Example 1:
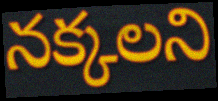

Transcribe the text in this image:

నక్కలని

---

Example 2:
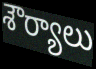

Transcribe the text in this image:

శౌర్యాలు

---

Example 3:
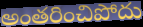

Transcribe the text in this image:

అంతరించిపోదు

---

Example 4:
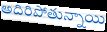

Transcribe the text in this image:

అదిరిపోతున్నాయి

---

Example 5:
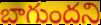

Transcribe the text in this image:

బాగుందని